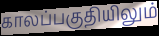
காலப்பகுதியிலும்